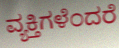
ವ್ಯಕ್ತಿಗಳೆಂದರೆ